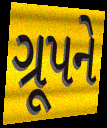
ગ્રૂપને